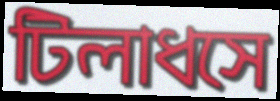
টিলাধসে